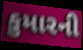
કુમારની